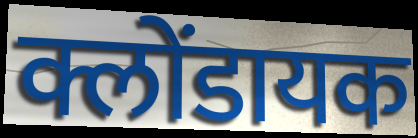
क्लोंडायक